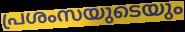
പ്രശംസയുടെയും